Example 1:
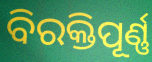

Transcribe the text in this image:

ବିରକ୍ତିପୂର୍ଣ୍ଣ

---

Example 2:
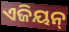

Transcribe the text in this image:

ଏଜିୟନ୍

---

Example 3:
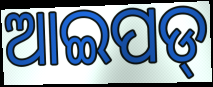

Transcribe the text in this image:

ଆଇପଡ୍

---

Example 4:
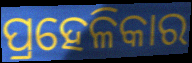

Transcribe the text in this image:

ପ୍ରହେଳିକାର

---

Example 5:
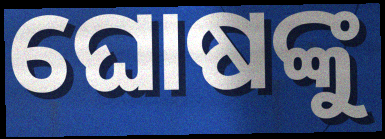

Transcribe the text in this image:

ଘୋଷଙ୍କୁ